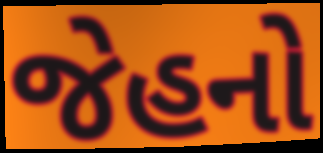
જેહનો